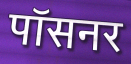
पॉसनर